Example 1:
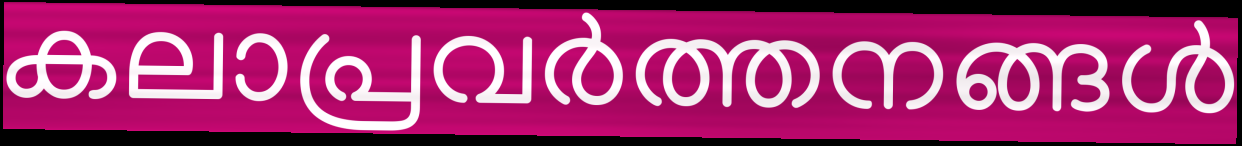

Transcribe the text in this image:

കലാപ്രവർത്തനങ്ങൾ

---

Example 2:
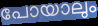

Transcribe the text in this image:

പോയാലും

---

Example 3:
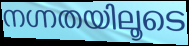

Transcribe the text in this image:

നഗ്നതയിലൂടെ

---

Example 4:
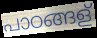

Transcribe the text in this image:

പാഠങ്ങള്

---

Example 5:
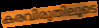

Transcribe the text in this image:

കരവിരുതിലൂടെ